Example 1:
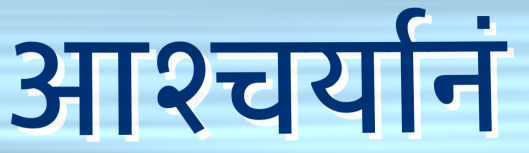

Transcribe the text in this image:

आश्चर्यानं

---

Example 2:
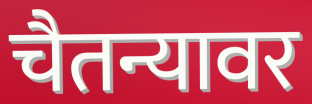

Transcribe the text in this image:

चैतन्यावर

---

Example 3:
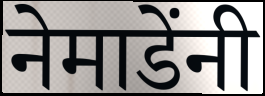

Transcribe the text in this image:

नेमाडेंनी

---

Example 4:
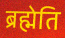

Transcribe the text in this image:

ब्रह्मेति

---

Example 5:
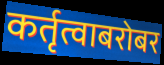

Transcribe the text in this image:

कर्तृत्वाबरोबर